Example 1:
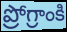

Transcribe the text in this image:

ప్రోగ్రాంకి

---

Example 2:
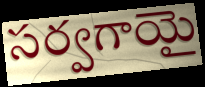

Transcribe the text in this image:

సర్వగాయై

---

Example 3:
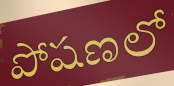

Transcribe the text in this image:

పోషణలో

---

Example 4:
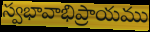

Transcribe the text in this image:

స్వభావాభిప్రాయము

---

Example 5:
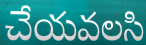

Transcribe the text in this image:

చేయవలసి